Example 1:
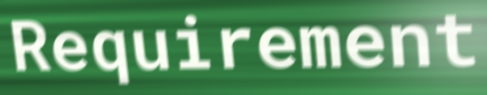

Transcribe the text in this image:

Requirement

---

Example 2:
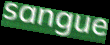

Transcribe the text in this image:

sangue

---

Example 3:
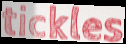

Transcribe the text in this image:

tickles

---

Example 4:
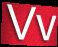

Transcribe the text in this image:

Vv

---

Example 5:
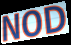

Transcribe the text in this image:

NOD